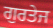
ਗੁਰਤੇਜ